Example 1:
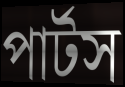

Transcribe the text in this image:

পার্টস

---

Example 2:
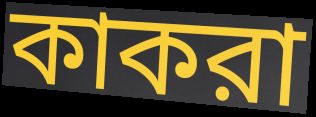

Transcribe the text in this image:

কাকরা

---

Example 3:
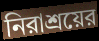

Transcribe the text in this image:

নিরাশ্রয়ের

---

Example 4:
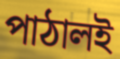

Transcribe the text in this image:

পাঠালই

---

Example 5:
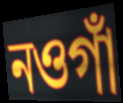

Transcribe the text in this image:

নওগাঁ